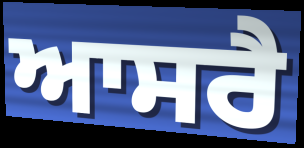
ਆਸਰੈ